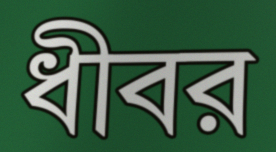
ধীবর